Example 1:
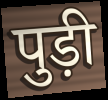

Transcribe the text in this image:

पुड़ी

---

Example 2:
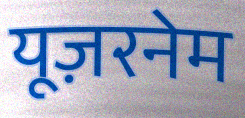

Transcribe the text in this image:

यूज़रनेम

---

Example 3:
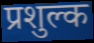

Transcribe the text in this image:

प्रशुल्क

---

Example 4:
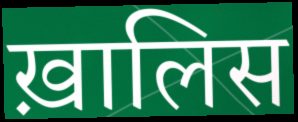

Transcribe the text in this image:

ख़ालिस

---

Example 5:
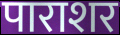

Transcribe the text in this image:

पाराशर